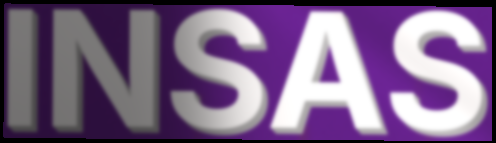
INSAS